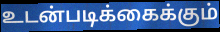
உடன்படிக்கைக்கும்